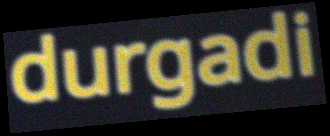
durgadi